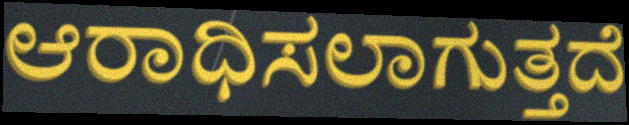
ಆರಾಧಿಸಲಾಗುತ್ತದೆ